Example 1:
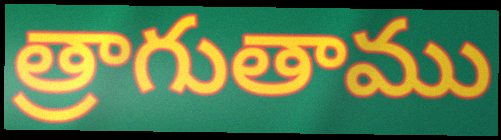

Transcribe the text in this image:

త్రాగుతాము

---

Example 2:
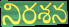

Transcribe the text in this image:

నిరశన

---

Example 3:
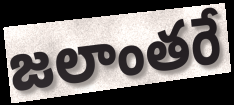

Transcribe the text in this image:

జలాంతరే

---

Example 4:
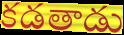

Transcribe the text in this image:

కడతాడు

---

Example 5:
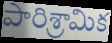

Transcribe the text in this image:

పారిశ్రామిక